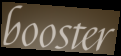
booster